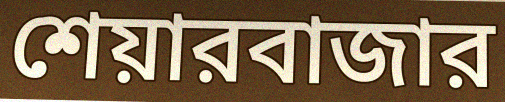
শেয়ারবাজার